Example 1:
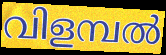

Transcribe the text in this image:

വിളമ്പൽ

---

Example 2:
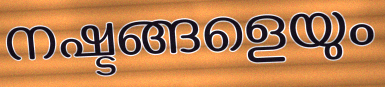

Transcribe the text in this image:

നഷ്ടങ്ങളെയും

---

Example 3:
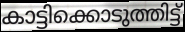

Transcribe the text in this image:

കാട്ടിക്കൊടുത്തിട്ട്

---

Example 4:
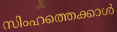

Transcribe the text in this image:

സിംഹത്തെക്കാൾ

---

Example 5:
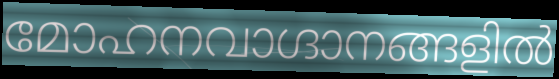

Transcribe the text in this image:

മോഹനവാഗ്ദാനങ്ങളിൽ